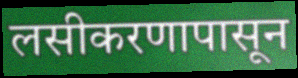
लसीकरणापासून